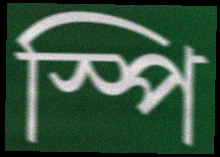
স্পি